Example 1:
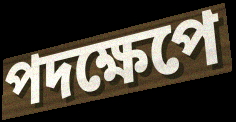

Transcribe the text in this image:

পদক্ষেপে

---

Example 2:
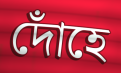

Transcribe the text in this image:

দোঁহে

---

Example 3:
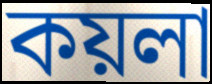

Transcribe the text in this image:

কয়লা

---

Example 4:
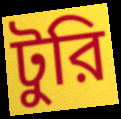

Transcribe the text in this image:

টুরি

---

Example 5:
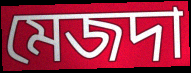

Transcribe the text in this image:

মেজদা